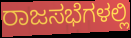
ರಾಜಸಭೆಗಳಲ್ಲಿ